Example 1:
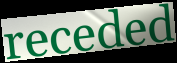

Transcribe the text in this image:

receded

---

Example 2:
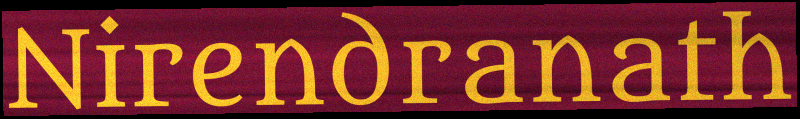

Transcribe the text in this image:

Nirendranath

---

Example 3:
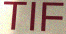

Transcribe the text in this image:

TIF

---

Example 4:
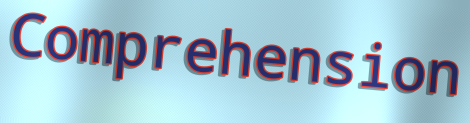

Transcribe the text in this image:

Comprehension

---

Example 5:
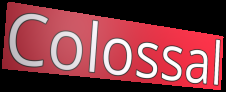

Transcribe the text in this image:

Colossal